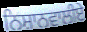
ਨਿਸ਼ਾਨਵਾਲੀਏ